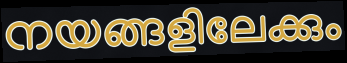
നയങ്ങളിലേക്കും